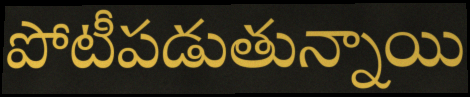
పోటీపడుతున్నాయి